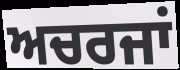
ਅਚਰਜਾਂ